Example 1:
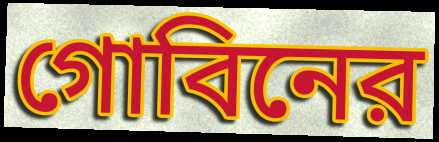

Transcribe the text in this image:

গোবিনের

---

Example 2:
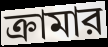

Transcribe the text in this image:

ক্রামার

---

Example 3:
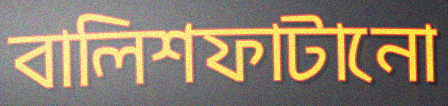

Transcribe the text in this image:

বালিশফাটানো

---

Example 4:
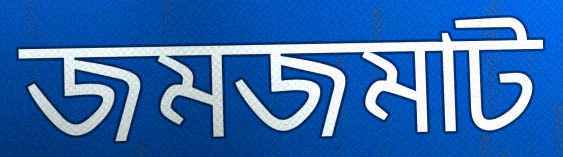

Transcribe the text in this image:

জমজমাট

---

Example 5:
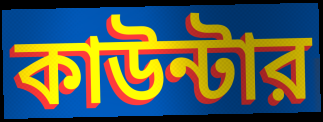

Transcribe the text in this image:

কাউন্টার